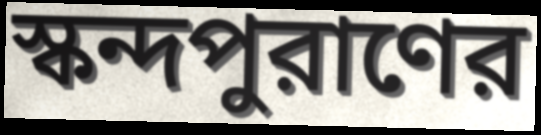
স্কন্দপুরাণের